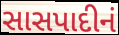
સાસપાદીનં